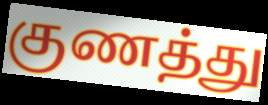
குணத்து